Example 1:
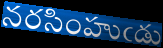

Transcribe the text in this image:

నరసింహుఁడు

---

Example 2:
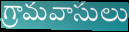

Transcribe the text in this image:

గ్రామవాసులు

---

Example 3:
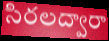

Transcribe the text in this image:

సిరలద్వారా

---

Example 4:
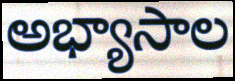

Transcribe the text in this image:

అభ్యాసాల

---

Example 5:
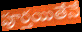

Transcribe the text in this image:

పూర్తయితేనే